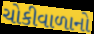
ચોકીવાળાનો